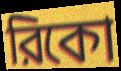
রিকো